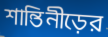
শান্তিনীড়ের